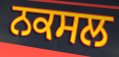
ਨਕਸਲ